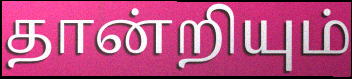
தான்றியும்